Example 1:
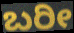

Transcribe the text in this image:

ಬರೀ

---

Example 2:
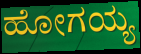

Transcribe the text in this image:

ಹೋಗಯ್ಯ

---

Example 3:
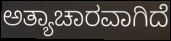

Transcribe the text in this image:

ಅತ್ಯಾಚಾರವಾಗಿದೆ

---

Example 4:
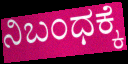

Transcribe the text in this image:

ನಿಬಂಧಕ್ಕೆ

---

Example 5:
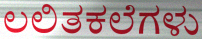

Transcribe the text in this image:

ಲಲಿತಕಲೆಗಳು